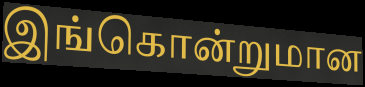
இங்கொன்றுமான